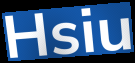
Hsiu